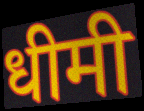
धीमी